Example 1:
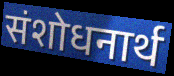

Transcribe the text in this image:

संशोधनार्थ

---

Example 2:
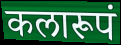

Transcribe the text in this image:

कलारूपं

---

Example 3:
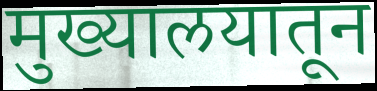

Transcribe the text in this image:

मुख्यालयातून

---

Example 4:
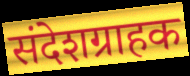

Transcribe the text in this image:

संदेशग्राहक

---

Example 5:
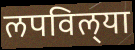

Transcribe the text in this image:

लपविल्या